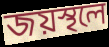
জয়স্থলে